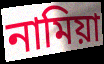
নামিয়া